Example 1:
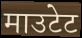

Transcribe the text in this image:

माउटेट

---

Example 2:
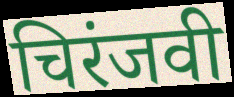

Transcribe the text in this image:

चिरंजवी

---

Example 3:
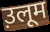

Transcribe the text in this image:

उ़लूम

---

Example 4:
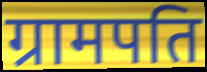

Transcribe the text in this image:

ग्रामपति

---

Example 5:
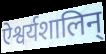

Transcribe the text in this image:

ऐश्वर्यशालिन्